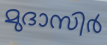
മുദാസിർ